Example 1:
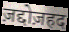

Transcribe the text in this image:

ज़द्दोज़हद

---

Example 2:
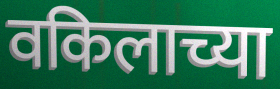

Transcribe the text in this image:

वकिलाच्या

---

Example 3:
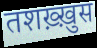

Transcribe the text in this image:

तशख़्ख़ुस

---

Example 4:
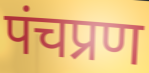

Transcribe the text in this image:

पंचप्रण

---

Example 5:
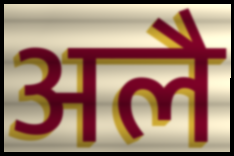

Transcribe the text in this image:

अलै